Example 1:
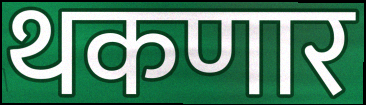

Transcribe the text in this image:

थकणार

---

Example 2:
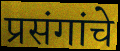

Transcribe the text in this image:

प्रसंगांचे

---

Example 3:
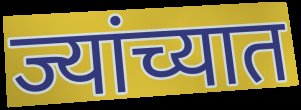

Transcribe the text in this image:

ज्यांच्यात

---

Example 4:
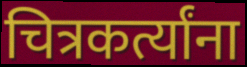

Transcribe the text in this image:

चित्रकर्त्यांना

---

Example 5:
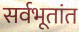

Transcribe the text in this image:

सर्वभूतांत